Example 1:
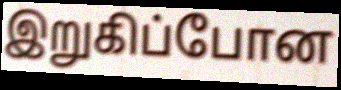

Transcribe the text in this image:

இறுகிப்போன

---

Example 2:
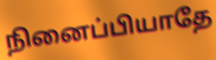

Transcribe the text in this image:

நினைப்பியாதே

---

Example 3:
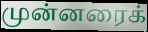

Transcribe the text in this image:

முன்னரைக்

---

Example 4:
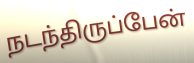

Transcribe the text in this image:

நடந்திருப்பேன்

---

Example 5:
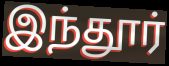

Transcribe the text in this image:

இந்தூர்